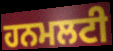
ਹਨਮਲਟੀ